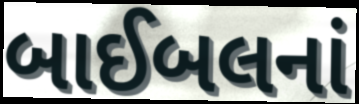
બાઈબલનાં